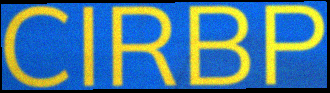
CIRBP